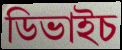
ডিভাইচ